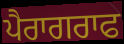
ਪੈਰਾਗਰਾਫ